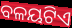
ବଳୟଟିଏ